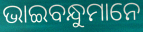
ଭାଇବନ୍ଧୁମାନେ